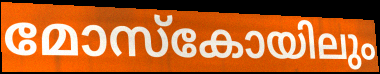
മോസ്കോയിലും